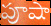
పూషా